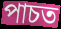
পাচত